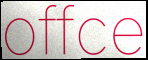
offce